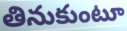
తినుకుంటూ